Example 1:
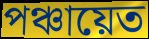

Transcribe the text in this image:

পঞ্চায়েত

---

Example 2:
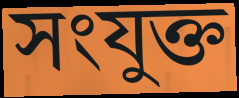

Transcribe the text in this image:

সংযুক্ত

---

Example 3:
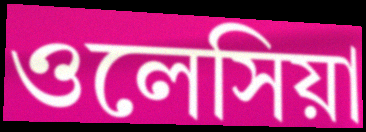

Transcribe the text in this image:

ওলেসিয়া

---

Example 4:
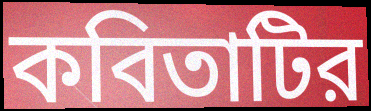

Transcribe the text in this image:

কবিতাটির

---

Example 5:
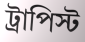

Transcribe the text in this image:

ট্রাপিস্ট